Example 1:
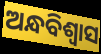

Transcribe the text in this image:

ଅନ୍ଧବିଶ୍ଵାସ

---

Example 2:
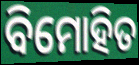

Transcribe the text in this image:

ବିମୋହିତ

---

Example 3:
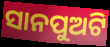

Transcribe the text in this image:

ସାନପୁଅଟି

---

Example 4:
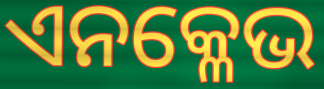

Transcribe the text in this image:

ଏନକ୍ଳେଭ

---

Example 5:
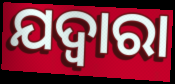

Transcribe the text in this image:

ଯଦ୍ୱାରା